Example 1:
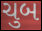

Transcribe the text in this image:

ચુબ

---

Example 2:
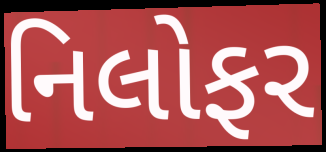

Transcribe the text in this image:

નિલોફર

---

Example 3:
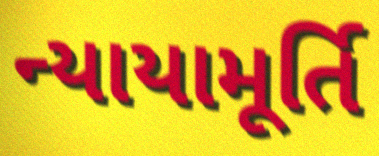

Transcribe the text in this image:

ન્યાયામૂર્તિ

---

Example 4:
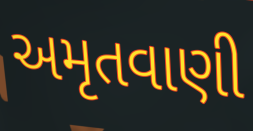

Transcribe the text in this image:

અમૃતવાણી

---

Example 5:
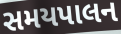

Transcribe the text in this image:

સમયપાલન